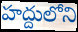
హద్దులోని